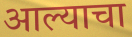
आल्‍याचा